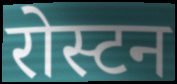
रोस्टन